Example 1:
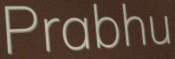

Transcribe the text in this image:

Prabhu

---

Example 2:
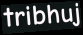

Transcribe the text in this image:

tribhuj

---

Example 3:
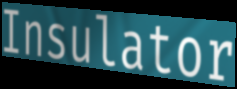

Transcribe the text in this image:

Insulator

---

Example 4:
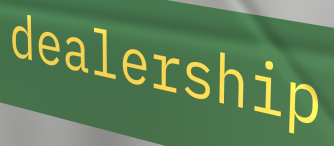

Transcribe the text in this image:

dealership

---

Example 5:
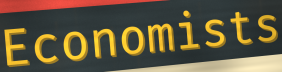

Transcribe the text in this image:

Economists